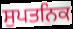
ਸੁਪਤਨਿਕ